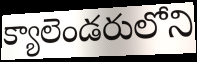
క్యాలెండరులోని